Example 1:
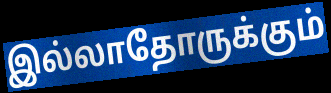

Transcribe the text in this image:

இல்லாதோருக்கும்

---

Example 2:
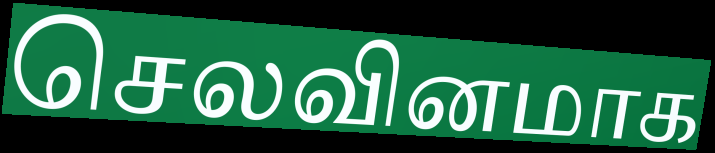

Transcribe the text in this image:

செலவினமாக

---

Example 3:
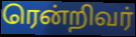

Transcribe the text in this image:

ரென்றிவர்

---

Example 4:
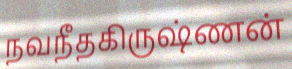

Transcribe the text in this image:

நவநீதகிருஷ்ணன்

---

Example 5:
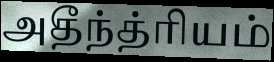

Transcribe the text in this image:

அதீந்த்ரியம்